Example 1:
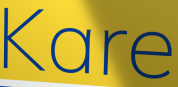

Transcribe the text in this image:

Kare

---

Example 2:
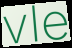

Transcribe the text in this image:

vle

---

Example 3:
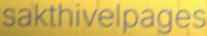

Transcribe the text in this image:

sakthivelpages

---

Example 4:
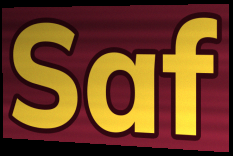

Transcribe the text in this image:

Saf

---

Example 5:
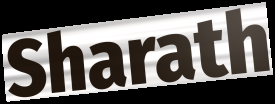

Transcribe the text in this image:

Sharath